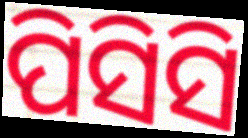
ପିସିସି